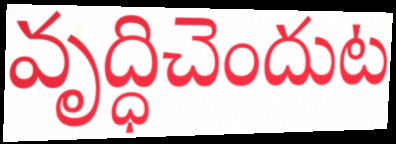
వృద్ధిచెందుట